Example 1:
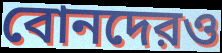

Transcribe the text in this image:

বোনদেরও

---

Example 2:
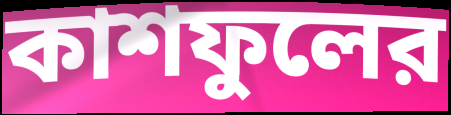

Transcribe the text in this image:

কাশফুলের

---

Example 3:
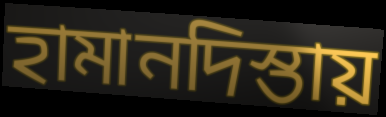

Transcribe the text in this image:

হামানদিস্তায়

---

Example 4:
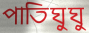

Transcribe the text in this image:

পাতিঘুঘু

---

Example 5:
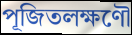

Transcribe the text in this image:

পূজিতলক্ষণৌ